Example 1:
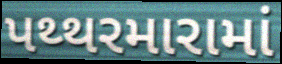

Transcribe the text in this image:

પથ્થરમારામાં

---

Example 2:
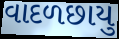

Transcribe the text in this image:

વાદળછાયુ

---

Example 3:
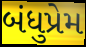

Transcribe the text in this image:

બંધુપ્રેમ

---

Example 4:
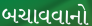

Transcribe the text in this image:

બચાવવાનો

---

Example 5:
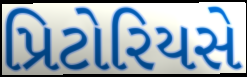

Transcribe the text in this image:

પ્રિટોરિયસે